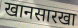
खानसारखा